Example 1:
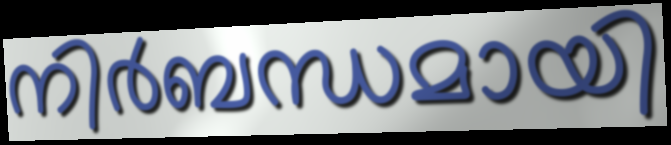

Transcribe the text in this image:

നിർബന്ധമായി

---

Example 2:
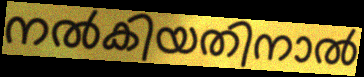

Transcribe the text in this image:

നൽകിയതിനാൽ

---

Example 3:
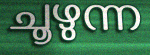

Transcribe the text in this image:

ചൂഴുന്ന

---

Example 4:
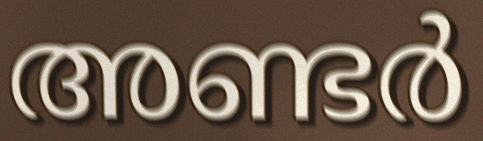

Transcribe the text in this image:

അണ്ടർ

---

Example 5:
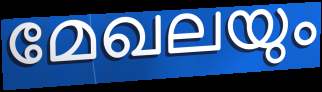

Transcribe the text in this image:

മേഖലയും